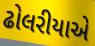
ઢોલરીયાએ